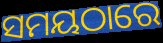
ସମୟଠାରେ